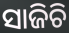
ସାଜିଚି